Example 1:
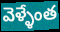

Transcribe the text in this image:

వెళ్ళేంత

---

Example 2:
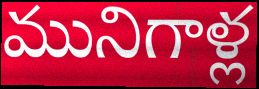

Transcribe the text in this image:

మునిగాళ్ల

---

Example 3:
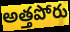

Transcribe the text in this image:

అత్తపోరు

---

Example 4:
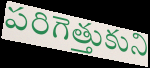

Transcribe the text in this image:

పరిగెత్తుకుని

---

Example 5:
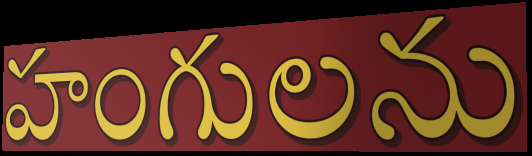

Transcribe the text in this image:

హంగులను